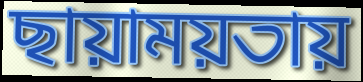
ছায়াময়তায়